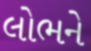
લોભને